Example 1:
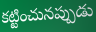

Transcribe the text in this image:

కట్టించునప్పుడు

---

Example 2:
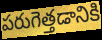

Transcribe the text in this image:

పరుగెత్తడానికి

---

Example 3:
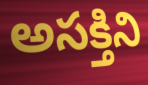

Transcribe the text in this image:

అసక్తిని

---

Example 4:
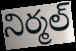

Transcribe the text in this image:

నిర్మల్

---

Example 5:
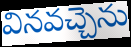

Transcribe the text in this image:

వినవచ్చెను